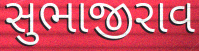
સુભાજીરાવ